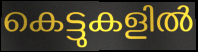
കെട്ടുകളിൽ